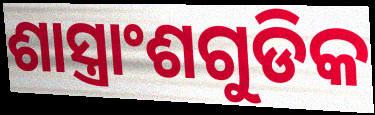
ଶାସ୍ତ୍ରାଂଶଗୁଡିକ